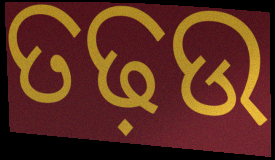
ତଢ଼ଉ